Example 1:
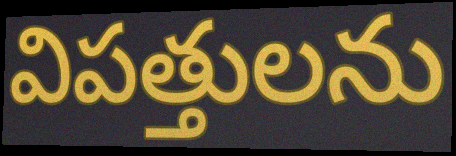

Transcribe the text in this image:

విపత్తులను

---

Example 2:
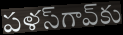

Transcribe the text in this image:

పళస్‌గావ్‌కు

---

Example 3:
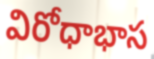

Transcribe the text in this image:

విరోధాభాస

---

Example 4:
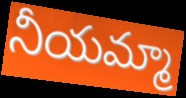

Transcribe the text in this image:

నీయమ్మా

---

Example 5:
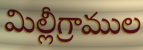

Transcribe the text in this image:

మిల్లీగ్రాముల